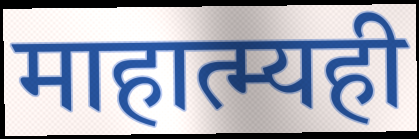
माहात्म्यही